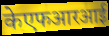
केएफआरआई